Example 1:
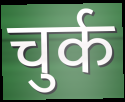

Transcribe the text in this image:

चुर्क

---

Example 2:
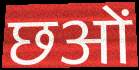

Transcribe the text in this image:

छओं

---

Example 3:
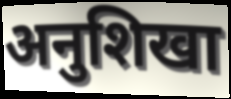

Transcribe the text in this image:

अनुशिखा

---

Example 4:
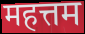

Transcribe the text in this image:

महत्तम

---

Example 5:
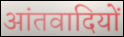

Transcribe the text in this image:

आंतवादियों